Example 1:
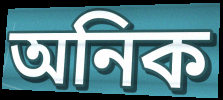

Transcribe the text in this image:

অনিক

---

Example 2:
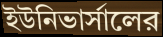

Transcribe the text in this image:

ইউনিভার্সালের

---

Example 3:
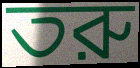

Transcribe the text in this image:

তরু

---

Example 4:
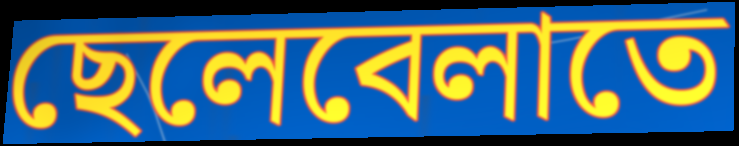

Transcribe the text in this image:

ছেলেবেলাতে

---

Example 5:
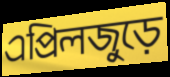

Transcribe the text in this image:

এপ্রিলজুড়ে